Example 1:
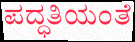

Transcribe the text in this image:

ಪದ್ಧತಿಯಂತೆ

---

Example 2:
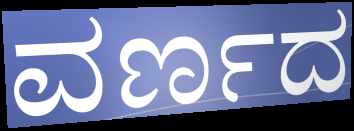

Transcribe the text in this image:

ವರ್ಣದ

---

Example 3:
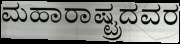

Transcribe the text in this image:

ಮಹಾರಾಷ್ಟ್ರದವರ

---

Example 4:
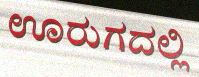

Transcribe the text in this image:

ಊರುಗದಲ್ಲಿ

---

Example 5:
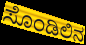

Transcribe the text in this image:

ಸೊಂಡಿಲಿನ